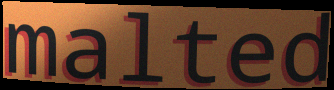
malted